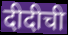
दीदीची